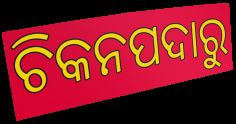
ଚିକନପଦାରୁ